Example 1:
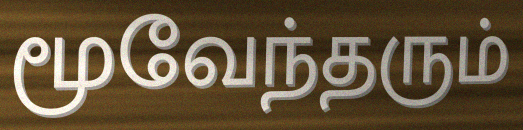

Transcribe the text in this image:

மூவேந்தரும்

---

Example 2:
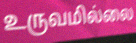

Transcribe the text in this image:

உருவமில்லை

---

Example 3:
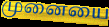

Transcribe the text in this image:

முனையை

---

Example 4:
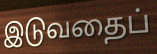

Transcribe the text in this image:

இடுவதைப்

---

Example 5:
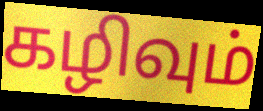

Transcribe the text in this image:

கழிவும்